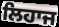
ਲਿਹਾਜ